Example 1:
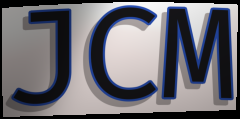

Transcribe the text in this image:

JCM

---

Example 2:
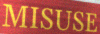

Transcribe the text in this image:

MISUSE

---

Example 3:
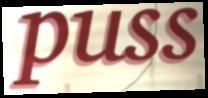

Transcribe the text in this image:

puss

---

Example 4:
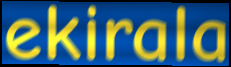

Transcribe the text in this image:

ekirala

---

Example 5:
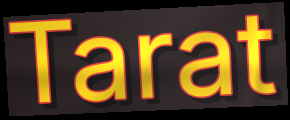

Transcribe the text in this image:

Tarat